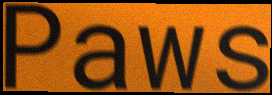
Paws